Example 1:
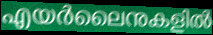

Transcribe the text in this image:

എയർലൈനുകളിൽ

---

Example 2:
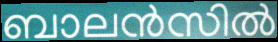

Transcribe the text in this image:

ബാലൻസിൽ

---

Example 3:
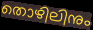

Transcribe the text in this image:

തൊഴിലിനും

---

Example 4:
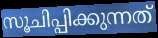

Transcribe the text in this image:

സൂചിപ്പിക്കുന്നത്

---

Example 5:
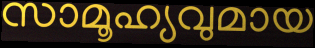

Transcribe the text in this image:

സാമൂഹ്യവുമായ